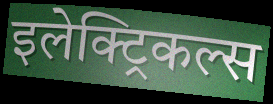
इलेक्ट्रिकल्स